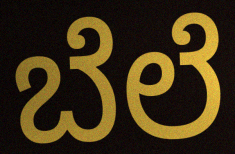
ಬೆಲೆ